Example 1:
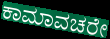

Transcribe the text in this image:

ಕಾಮಾವಚರೇ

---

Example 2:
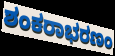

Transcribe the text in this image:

ಶಂಕರಾಭರಣಂ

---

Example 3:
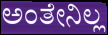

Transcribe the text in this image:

ಅಂತೇನಿಲ್ಲ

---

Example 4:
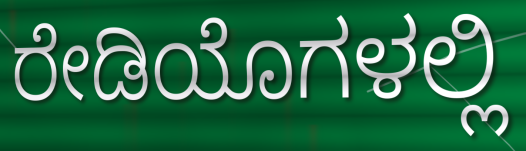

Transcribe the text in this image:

ರೇಡಿಯೊಗಳಲ್ಲಿ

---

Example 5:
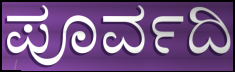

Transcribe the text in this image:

ಪೂರ್ವದಿ